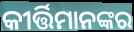
କୀର୍ତ୍ତିମାନଙ୍କର